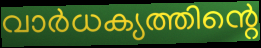
വാർധക്യത്തിന്റെ